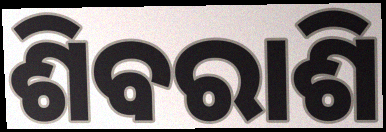
ଶିବରାଶି